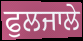
ਫੁਲਜਾਲੇ